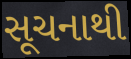
સૂચનાથી